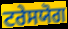
ਟਰੇਸਯੋਗ